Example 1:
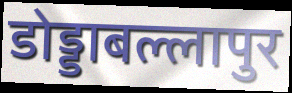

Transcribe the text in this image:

डोड्डाबल्लापुर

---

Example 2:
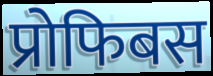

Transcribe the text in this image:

प्रोफिबस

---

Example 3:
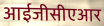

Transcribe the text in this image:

आईजीसीएआर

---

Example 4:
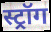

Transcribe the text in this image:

स्ट्रॉग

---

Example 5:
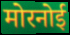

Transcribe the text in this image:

मोरनोई